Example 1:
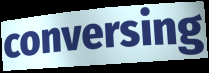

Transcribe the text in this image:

conversing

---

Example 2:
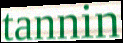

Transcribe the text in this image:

tannin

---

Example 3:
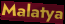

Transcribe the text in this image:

Malatya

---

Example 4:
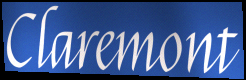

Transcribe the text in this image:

Claremont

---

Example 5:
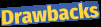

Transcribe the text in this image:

Drawbacks